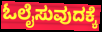
ಓಲೈಸುವುದಕ್ಕೆ